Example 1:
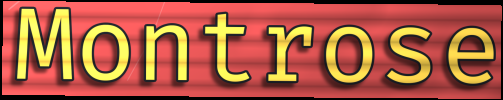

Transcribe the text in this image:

Montrose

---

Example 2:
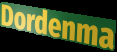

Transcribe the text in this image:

Dordenma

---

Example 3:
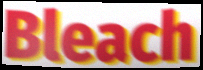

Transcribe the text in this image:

Bleach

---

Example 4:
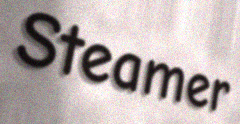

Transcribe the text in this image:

Steamer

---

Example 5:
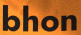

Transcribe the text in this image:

bhon